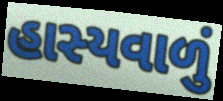
હાસ્યવાળું